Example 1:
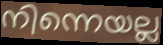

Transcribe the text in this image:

നിന്നെയല്ല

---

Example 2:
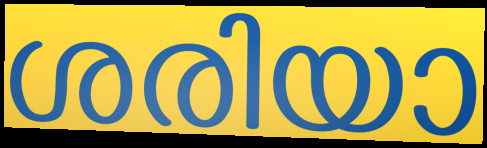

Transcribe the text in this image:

ശരിയാ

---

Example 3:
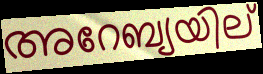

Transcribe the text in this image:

അറേബ്യയില്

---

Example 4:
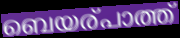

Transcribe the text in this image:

ബെയര്പാത്ത്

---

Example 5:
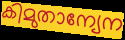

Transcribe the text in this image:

കിമുതാന്യേന